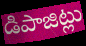
డిపాజిట్లు